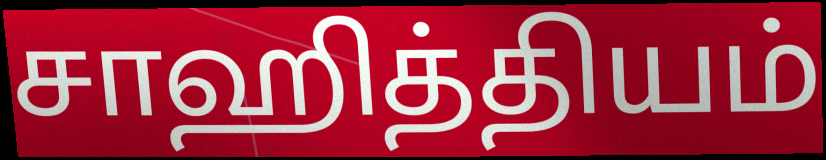
சாஹித்தியம்